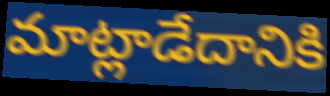
మాట్లాడేదానికి